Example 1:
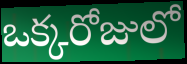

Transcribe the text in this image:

ఒక్కరోజులో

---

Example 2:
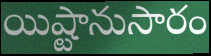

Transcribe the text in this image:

యిష్టానుసారం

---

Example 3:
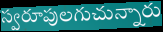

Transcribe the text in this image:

స్వరూపులగుచున్నారు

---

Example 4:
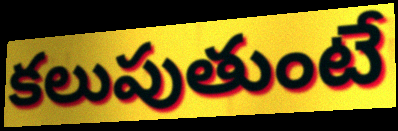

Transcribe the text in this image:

కలుపుతుంటే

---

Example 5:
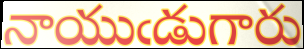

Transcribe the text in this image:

నాయుఁడుగారు